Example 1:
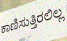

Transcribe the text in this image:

ಕಾಣಿಸುತ್ತಿರಲಿಲ್ಲ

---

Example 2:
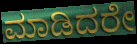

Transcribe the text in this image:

ಮಾಡಿದರೇ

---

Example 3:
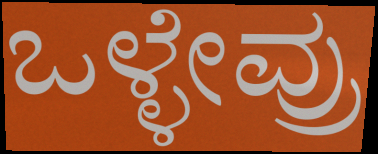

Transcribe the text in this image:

ಒಳ್ಳೇವ್ರು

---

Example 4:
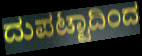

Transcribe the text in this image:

ದುಪಟ್ಟಾದಿಂದ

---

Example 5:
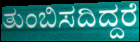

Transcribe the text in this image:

ತುಂಬಿಸದಿದ್ದರೆ